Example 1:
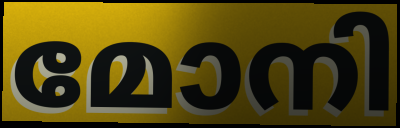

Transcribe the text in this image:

മോനി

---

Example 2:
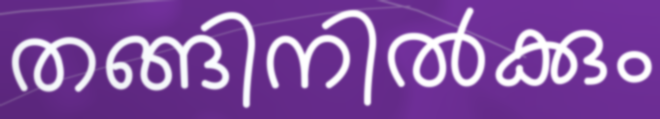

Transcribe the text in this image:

തങ്ങിനിൽക്കും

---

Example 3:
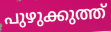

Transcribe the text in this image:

പുഴുക്കുത്ത്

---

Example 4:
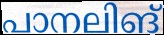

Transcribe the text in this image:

പാനലിങ്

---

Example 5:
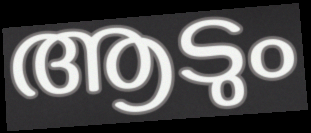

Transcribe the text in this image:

ആടും